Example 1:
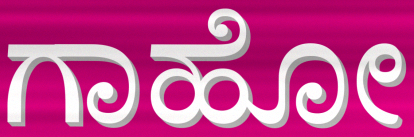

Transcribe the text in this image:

ಗಾಹೋ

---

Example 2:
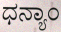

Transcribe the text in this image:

ಧನ್ಯಾಂ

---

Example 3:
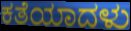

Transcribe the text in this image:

ಕತೆಯಾದಳು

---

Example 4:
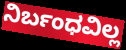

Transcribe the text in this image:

ನಿರ್ಬಂಧವಿಲ್ಲ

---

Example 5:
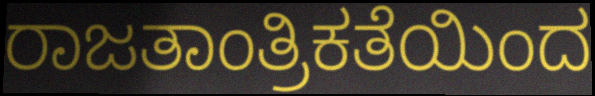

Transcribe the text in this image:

ರಾಜತಾಂತ್ರಿಕತೆಯಿಂದ